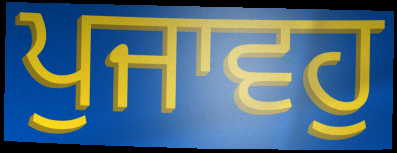
ਪੁਜਾਵਹੁ